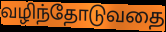
வழிந்தோடுவதை